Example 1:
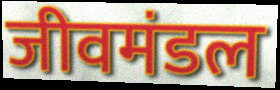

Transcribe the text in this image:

जीवमंडल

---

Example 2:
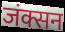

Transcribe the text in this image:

जंक्सन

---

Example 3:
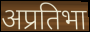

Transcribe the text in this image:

अप्रतिभा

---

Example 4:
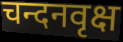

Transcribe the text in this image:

चन्दनवृक्ष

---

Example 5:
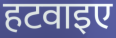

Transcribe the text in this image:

हटवाइए